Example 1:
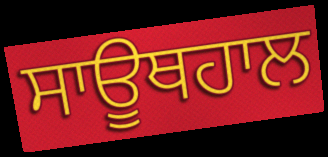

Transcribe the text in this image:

ਸਾਊਥਹਾਲ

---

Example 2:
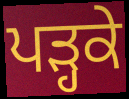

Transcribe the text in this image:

ਪੜ੍ਹਕੇ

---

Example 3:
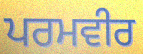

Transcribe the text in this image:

ਪਰਮਵੀਰ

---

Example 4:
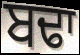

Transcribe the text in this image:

ਬਢਾ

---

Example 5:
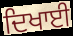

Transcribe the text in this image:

ਦਿਖਾਈ